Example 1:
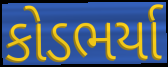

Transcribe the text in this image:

કોડભર્યા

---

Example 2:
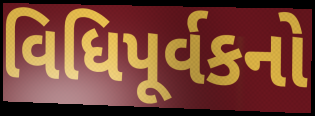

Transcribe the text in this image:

વિધિપૂર્વકનો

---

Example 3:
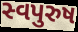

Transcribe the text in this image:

સ્વપુરુષ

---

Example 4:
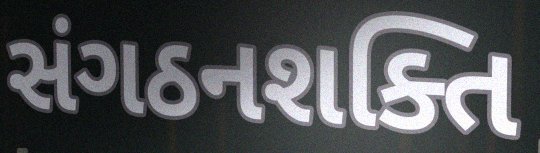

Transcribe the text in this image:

સંગઠનશક્તિ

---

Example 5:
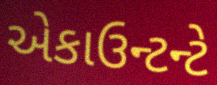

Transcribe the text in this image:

એકાઉન્ટન્ટે